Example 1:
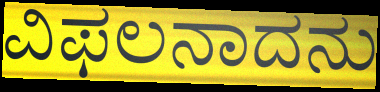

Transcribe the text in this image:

ವಿಫಲನಾದನು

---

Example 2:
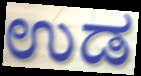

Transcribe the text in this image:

ಉಡ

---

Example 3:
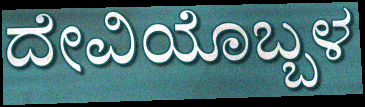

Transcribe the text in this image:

ದೇವಿಯೊಬ್ಬಳ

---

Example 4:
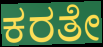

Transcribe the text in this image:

ಕರತೇ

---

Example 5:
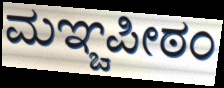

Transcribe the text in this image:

ಮಞ್ಚಪೀಠಂ